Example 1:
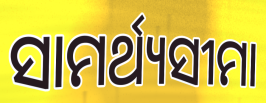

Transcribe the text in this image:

ସାମର୍ଥ୍ୟସୀମା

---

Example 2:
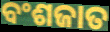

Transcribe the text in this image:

ବଂଶଜାତ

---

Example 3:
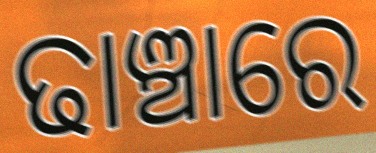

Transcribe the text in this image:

ଢାଞ୍ଚାରେ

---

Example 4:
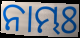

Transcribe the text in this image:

ନାମ୍ଭଃ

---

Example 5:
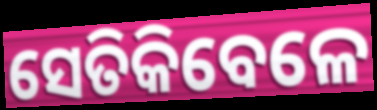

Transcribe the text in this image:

ସେତିକିବେଳେ